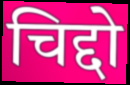
चिद्दो